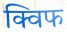
क्विफ